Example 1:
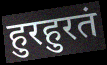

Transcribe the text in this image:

हुरहुरतं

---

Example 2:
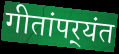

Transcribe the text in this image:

गीतांपर्यंत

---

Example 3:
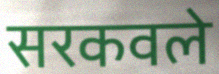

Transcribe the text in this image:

सरकवले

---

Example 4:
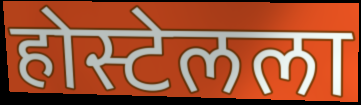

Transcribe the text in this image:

होस्टेलला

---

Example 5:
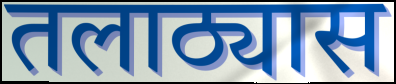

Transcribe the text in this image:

तलाठ्यास